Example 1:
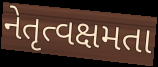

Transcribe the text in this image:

નેતૃત્વક્ષમતા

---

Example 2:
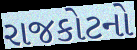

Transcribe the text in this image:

રાજકોટનો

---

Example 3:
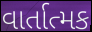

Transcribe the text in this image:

વાર્તાત્મક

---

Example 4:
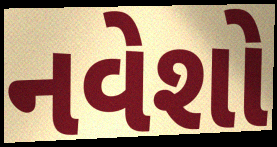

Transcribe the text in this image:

નવેશો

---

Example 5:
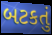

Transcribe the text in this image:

બટકતું